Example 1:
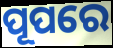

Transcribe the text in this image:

ପୂପରେ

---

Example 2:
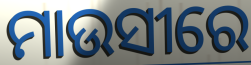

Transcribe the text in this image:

ମାଉସୀରେ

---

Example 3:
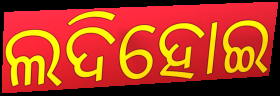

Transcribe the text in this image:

ଲଦିହୋଇ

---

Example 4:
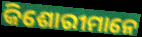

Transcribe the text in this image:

କିଶୋରୀମାନେ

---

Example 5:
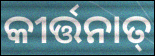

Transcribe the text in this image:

କୀର୍ତ୍ତନାତ୍